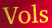
Vols